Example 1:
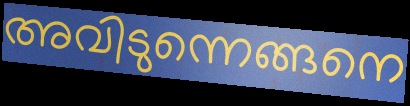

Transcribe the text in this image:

അവിടുന്നെങ്ങനെ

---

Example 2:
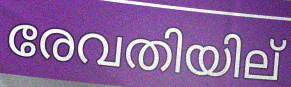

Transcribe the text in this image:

രേവതിയില്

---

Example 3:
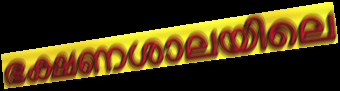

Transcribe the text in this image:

ഭക്ഷണശാലയിലെ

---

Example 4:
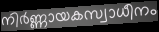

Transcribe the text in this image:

നിർണ്ണായകസ്വാധീനം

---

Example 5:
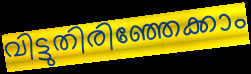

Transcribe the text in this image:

വിട്ടുതിരിഞ്ഞേക്കാം